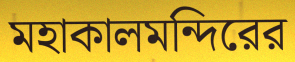
মহাকালমন্দিরের